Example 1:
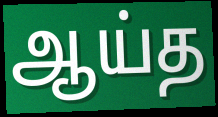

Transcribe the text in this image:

ஆய்த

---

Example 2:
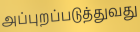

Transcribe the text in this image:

அப்புறப்படுத்துவது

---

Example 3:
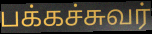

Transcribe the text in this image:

பக்கச்சுவர்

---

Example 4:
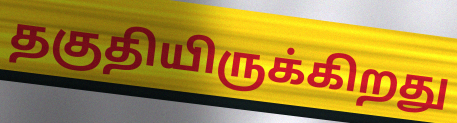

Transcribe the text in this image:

தகுதியிருக்கிறது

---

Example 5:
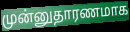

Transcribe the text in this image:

முன்னுதாரணமாக